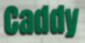
Caddy